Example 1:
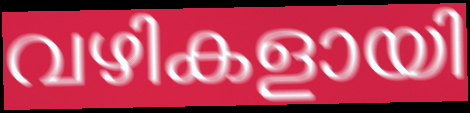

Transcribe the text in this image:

വഴികളായി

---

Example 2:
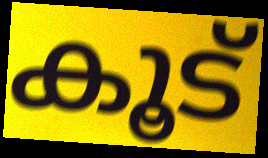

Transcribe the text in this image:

കൂട്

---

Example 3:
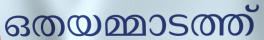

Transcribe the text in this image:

ഒതയമ്മാടത്ത്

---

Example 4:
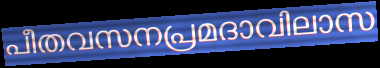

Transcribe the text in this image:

പീതവസനപ്രമദാവിലാസ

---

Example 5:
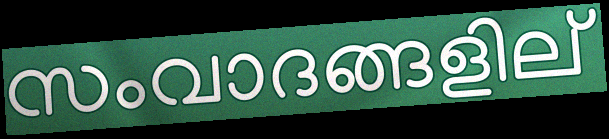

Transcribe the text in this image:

സംവാദങ്ങളില്